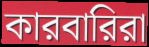
কারবারিরা